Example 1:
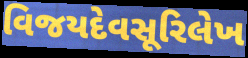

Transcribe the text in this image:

વિજયદેવસૂરિલેખ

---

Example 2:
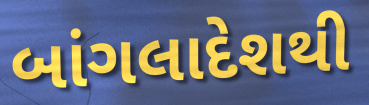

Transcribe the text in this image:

બાંગલાદેશથી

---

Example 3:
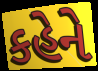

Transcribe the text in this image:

કહેને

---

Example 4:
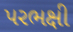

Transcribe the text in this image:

પરભક્ષી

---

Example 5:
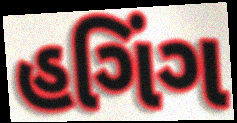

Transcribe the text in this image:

હગિંગ